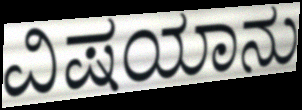
ವಿಷಯಾನು